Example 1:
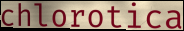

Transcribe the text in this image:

chlorotica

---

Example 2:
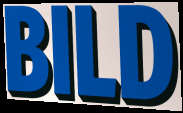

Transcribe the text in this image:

BILD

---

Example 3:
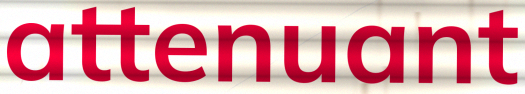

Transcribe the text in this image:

attenuant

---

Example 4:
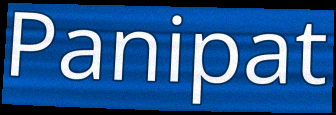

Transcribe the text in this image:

Panipat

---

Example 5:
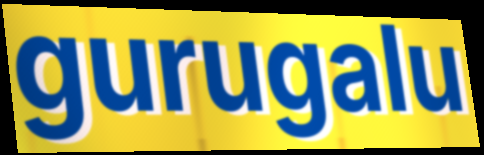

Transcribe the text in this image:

gurugalu